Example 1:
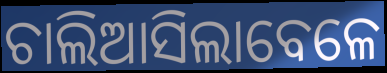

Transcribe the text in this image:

ଚାଲିଆସିଲାବେଳେ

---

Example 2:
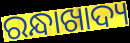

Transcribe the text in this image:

ରନ୍ଧାଖାଦ୍ୟ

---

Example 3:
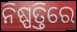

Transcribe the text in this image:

ନିଷ୍ପତ୍ତିରେ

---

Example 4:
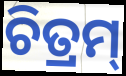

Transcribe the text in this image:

ଚିତ୍ରମ୍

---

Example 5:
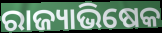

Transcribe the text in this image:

ରାଜ୍ୟାଭିଷେକ